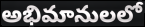
అభిమానులలో